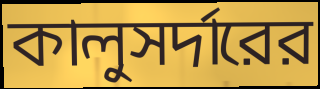
কালুসর্দারের